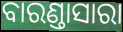
ବାରଣ୍ଡାସାରା